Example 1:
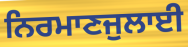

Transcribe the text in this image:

ਨਿਰਮਾਣਜੁਲਾਈ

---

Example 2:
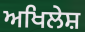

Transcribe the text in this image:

ਅਖਿਲੇਸ਼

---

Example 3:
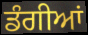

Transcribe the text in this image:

ਡੰਗੀਆਂ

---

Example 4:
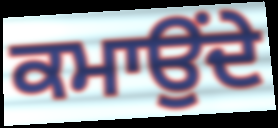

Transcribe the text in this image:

ਕਮਾਉਂਦੇ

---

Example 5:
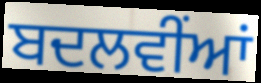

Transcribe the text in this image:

ਬਦਲਵੀਂਆਂ